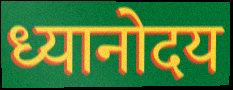
ध्यानोदय